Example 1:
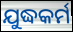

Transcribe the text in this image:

ଯୁଦ୍ଧକର୍ମ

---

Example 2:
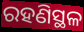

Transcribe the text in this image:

ରହଣିସ୍ଥଳ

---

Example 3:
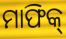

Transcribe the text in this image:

ମାଫିକ୍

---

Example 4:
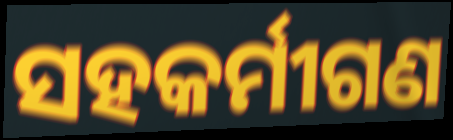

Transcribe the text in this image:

ସହକର୍ମୀଗଣ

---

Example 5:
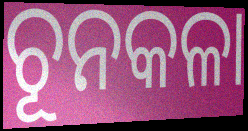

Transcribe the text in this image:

ଚୂନକଳା